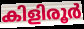
കിളിരൂർ